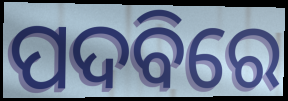
ପଦବିରେ